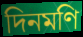
দিনমণি